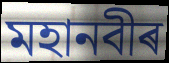
মহানবীৰ